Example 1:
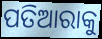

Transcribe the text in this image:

ପତିଆରାକୁ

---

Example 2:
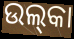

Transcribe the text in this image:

ଉଲ୍‍କା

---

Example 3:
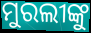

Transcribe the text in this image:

ମୁରଲୀଙ୍କୁ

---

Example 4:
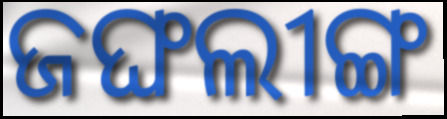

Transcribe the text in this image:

ଜଙ୍ଘଲୀଙ୍ଗ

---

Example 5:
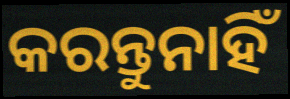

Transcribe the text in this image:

କରନ୍ତୁନାହିଁ